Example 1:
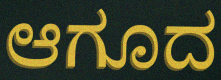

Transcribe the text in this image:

ಆಗೂದ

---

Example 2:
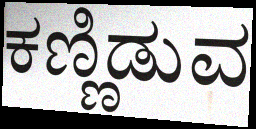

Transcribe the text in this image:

ಕಣ್ಣಿಡುವ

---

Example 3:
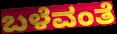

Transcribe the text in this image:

ಬಳೆವಂತೆ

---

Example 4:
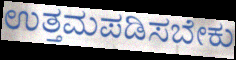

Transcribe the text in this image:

ಉತ್ತಮಪಡಿಸಬೇಕು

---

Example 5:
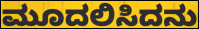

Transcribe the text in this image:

ಮೂದಲಿಸಿದನು